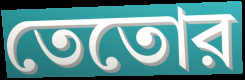
তেতোর